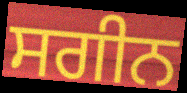
ਸਗੀਨ